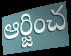
ఆర్జించ